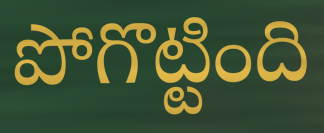
పోగొట్టింది